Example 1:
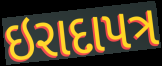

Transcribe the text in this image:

ઇરાદાપત્ર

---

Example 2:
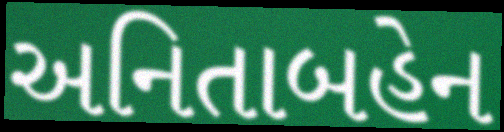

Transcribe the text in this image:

અનિતાબહેન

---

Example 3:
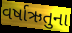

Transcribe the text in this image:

વર્ષાઋતુના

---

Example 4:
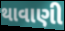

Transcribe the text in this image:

થાવાણી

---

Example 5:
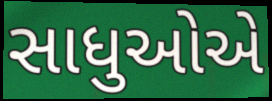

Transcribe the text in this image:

સાધુઓએ